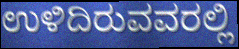
ಉಳಿದಿರುವವರಲ್ಲಿ